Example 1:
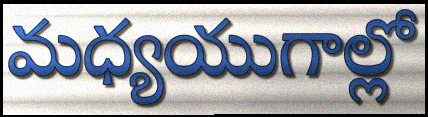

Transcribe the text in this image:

మధ్యయుగాల్లో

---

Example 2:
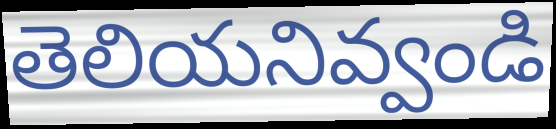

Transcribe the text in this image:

తెలియనివ్వండి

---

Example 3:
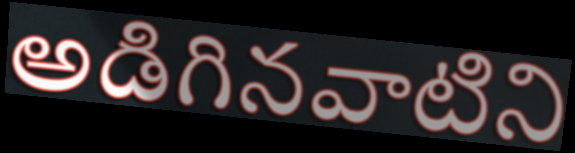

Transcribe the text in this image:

అడిగినవాటిని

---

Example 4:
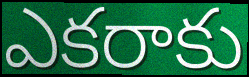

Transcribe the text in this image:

ఎకరాకు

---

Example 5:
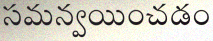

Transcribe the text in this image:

సమన్వయించడం